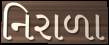
નિરાળા